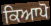
ਕਿਆਪੋ